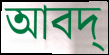
আবদ্